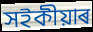
সইকীয়াৰ